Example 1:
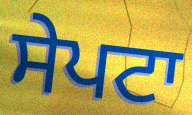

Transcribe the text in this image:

ਸੇਪਟਾ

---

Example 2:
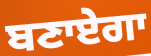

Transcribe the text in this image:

ਬਣਾਏਗਾ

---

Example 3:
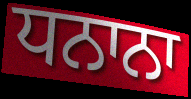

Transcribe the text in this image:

ਧਨਾਨਾ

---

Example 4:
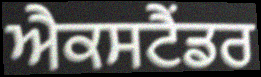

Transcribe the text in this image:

ਐਕਸਟੈਂਡਰ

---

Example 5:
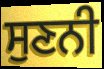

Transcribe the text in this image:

ਸੁਣਨੀ